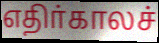
எதிர்காலச்